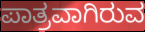
ಪಾತ್ರವಾಗಿರುವ